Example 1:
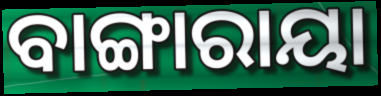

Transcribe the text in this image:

ବାଙ୍ଗାରାୟା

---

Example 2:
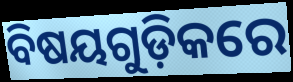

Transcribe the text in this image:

ବିଷୟଗୁଡ଼ିକରେ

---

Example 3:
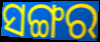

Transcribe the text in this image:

ସଙ୍ଗର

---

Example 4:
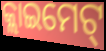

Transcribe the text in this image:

କ୍ଲାଇମେଟ୍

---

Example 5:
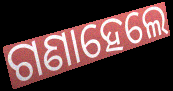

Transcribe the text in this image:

ଗଣାହେଲେ